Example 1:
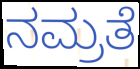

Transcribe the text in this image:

ನಮ್ರತೆ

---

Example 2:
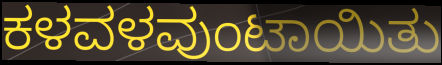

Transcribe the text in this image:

ಕಳವಳವುಂಟಾಯಿತು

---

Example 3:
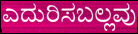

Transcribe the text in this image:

ಎದುರಿಸಬಲ್ಲವು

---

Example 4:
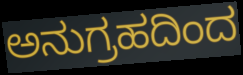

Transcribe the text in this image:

ಅನುಗ್ರಹದಿಂದ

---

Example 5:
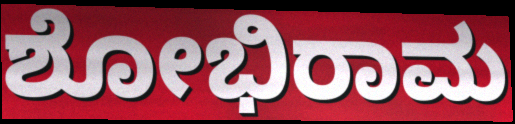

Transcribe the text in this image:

ಶೋಭಿರಾಮ